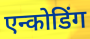
एन्कोडिंग